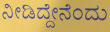
ನೀಡಿದ್ದೇನೆಂದು